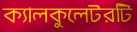
ক্যালকুলেটরটি